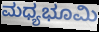
ಮಧ್ಯಭೂಮಿ